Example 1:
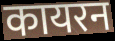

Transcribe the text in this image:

कायरन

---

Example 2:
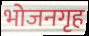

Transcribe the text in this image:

भोजनगृह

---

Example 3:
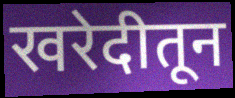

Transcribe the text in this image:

खरेदीतून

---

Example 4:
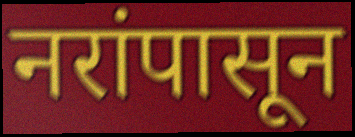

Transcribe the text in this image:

नरांपासून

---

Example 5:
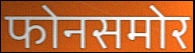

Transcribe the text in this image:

फोनसमोर